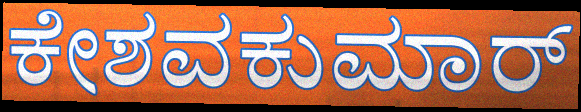
ಕೇಶವಕುಮಾರ್